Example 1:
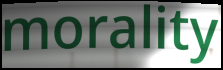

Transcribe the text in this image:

morality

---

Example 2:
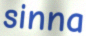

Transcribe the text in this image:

sinna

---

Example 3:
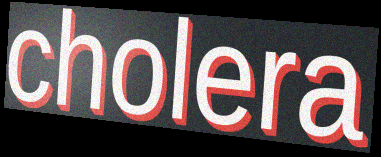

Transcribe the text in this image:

cholera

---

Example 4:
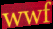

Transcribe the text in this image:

wwf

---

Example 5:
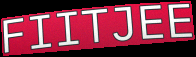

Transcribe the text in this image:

FIITJEE